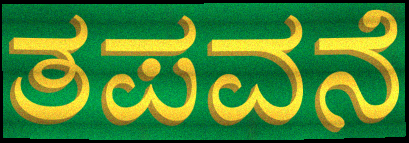
ತಪವನೆ